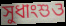
সুধাংশুও